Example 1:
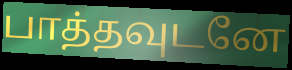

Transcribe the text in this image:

பாத்தவுடனே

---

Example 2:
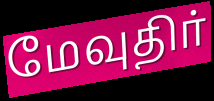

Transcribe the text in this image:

மேவுதிர்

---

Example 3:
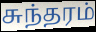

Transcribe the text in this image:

சுந்தரம்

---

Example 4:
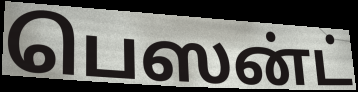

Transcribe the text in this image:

பெஸன்ட்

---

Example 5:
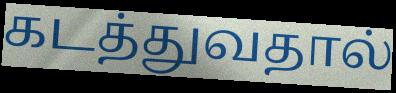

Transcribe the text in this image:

கடத்துவதால்